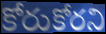
కోరుకోరని